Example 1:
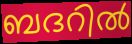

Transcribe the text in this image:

ബദറിൽ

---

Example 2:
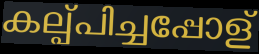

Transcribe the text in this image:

കല്പ്പിച്ചപ്പോള്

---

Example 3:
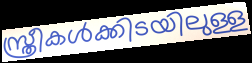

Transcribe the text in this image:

സ്ത്രീകൾക്കിടയിലുള്ള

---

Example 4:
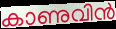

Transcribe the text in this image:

കാണുവിൻ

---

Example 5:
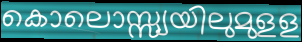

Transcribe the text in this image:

കൊലൊസ്സ്യയിലുമുളള